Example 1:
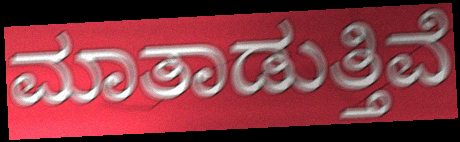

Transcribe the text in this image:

ಮಾತಾಡುತ್ತಿವೆ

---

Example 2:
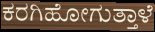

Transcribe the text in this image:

ಕರಗಿಹೋಗುತ್ತಾಳೆ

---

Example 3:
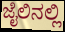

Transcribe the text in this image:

ಜೈಲಿನಲ್ಲಿ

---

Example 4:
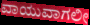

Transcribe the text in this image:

ವಾಯುವಾಗಲೀ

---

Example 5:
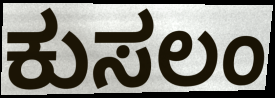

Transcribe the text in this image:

ಕುಸಲಂ